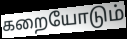
கறையோடும்